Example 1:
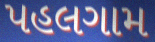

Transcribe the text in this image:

પહલગામ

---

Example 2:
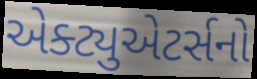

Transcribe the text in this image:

એક્ટ્યુએટર્સનો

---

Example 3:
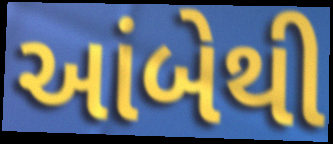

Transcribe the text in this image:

આંબેથી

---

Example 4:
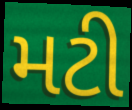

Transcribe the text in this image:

મટી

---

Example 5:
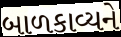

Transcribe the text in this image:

બાળકાવ્યને